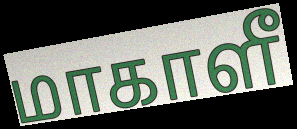
மாகாளீ